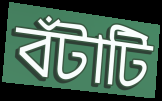
বঁটাটি